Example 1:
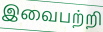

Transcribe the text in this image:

இவைபற்றி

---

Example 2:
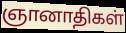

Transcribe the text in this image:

ஞானாதிகள்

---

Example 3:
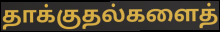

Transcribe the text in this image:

தாக்குதல்களைத்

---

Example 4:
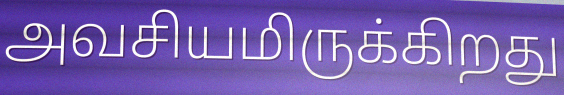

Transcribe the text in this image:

அவசியமிருக்கிறது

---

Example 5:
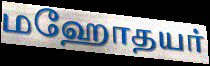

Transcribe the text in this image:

மஹோதயர்